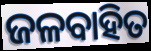
ଜଳବାହିତ